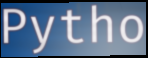
Pytho